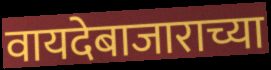
वायदेबाजाराच्या